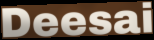
Deesai